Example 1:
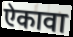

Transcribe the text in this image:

ऐकावा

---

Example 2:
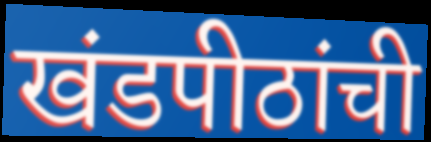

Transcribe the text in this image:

खंडपीठांची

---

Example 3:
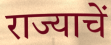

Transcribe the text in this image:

राज्याचें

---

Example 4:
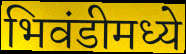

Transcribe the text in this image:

भिवंडीमध्ये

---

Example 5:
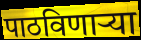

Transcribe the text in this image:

पाठविणाऱ्या